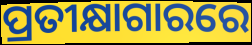
ପ୍ରତୀକ୍ଷାଗାରରେ